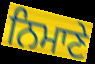
ਨਿਮਾਣੇ